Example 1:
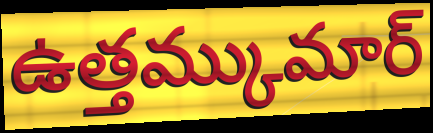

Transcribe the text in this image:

ఉత్తమ్కుమార్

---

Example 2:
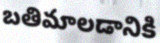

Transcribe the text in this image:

బతిమాలడానికి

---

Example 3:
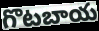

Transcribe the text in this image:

గొటబాయ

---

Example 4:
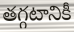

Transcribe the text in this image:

తగ్గటానికీ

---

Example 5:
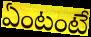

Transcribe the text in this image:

ఏంటంటే